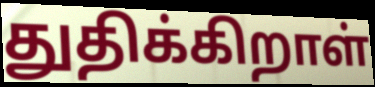
துதிக்கிறாள்